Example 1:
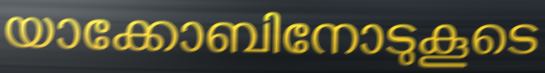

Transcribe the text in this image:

യാക്കോബിനോടുകൂടെ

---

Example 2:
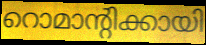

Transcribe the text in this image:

റൊമാന്റിക്കായി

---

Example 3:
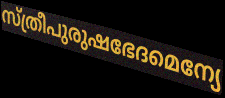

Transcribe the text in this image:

സ്ത്രീപുരുഷഭേദമെന്യേ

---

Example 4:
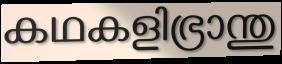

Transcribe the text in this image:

കഥകളിഭ്രാന്തു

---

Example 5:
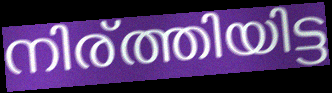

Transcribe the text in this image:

നിര്ത്തിയിട്ട